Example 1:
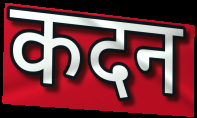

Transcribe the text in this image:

कदन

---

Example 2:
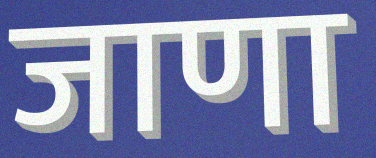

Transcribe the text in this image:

जाणा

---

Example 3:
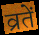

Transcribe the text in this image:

व्रतें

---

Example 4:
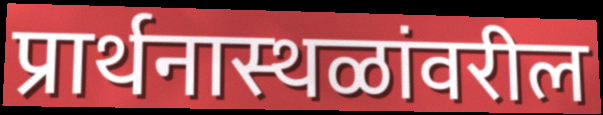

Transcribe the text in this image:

प्रार्थनास्थळांवरील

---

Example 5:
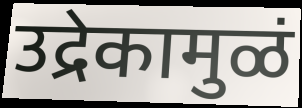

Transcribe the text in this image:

उद्रेकामुळं